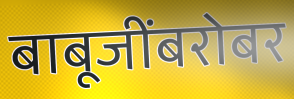
बाबूजींबरोबर